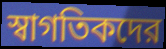
স্বাগতিকদের